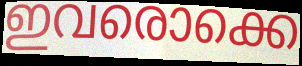
ഇവരൊക്കെ